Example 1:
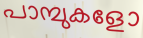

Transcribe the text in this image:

പാമ്പുകളോ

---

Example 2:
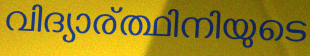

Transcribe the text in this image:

വിദ്യാര്ത്ഥിനിയുടെ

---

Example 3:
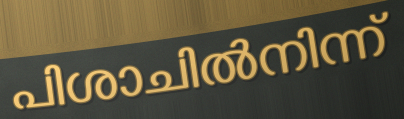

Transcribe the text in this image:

പിശാചിൽനിന്ന്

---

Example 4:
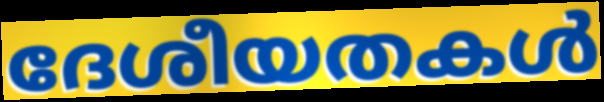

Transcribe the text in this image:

ദേശീയതകൾ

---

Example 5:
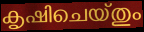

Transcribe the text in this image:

കൃഷിചെയ്തും